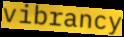
vibrancy